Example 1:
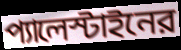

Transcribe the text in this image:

প্যালেস্টাইনের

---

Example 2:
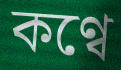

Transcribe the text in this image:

কণ্বে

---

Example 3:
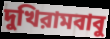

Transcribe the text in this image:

দুখিরামবাবু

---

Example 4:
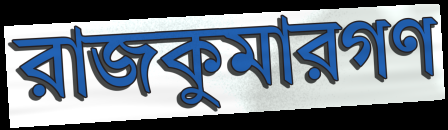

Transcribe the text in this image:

রাজকুমারগণ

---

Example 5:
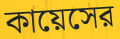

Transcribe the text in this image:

কায়েসের